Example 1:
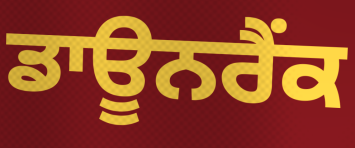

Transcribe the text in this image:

ਡਾਊਨਰੈਂਕ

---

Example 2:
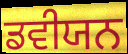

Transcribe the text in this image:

ਡਵੀਯਨ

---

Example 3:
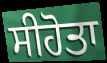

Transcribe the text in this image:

ਸੀਹੋਤਾ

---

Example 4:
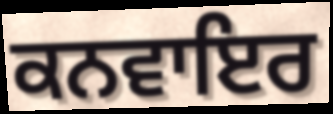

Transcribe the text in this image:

ਕਨਵਾਇਰ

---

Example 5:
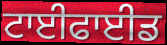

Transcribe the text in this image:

ਟਾਈਫਾਈਡ